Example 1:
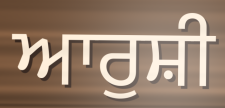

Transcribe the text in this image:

ਆਰੁਸ਼ੀ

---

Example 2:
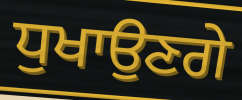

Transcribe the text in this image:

ਧੁਖਾਉਣਗੇ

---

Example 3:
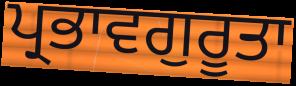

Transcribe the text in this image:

ਪ੍ਰਭਾਵਗੁਰੂਤਾ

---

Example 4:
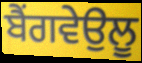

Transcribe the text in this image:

ਬੈਂਗਵੇਉਲੂ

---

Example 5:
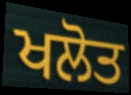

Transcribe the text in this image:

ਖਲੋਤ